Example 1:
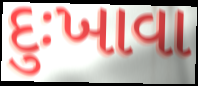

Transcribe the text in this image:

દુઃખાવા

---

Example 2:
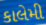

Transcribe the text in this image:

કાલેમી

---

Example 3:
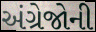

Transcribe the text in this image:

અંગ્રેજોની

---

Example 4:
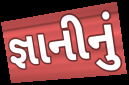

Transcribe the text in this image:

જ્ઞાનીનું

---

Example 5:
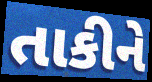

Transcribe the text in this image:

તાકીને